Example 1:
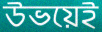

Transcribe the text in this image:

উভয়েই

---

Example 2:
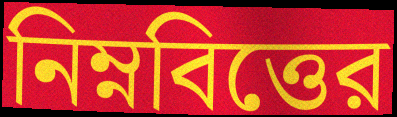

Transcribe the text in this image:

নিম্নবিত্তের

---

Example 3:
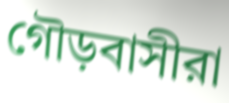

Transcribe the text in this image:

গৌড়বাসীরা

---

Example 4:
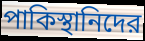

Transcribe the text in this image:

পাকিস্থানিদের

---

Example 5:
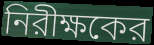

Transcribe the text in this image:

নিরীক্ষকের